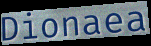
Dionaea